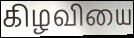
கிழவியை